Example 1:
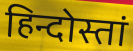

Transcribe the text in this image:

हिन्दोस्तां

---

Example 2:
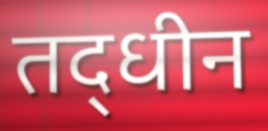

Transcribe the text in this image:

तद्धीन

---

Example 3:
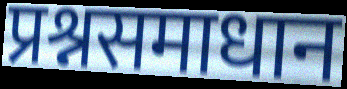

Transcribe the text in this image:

प्रश्नसमाधान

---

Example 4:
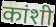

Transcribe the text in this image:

कांशी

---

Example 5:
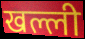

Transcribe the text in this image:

खल्ली